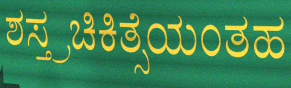
ಶಸ್ತ್ರಚಿಕಿತ್ಸೆಯಂತಹ